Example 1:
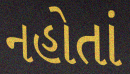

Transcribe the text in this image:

નહોતાં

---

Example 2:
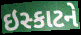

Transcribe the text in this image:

ઇસ્કાટને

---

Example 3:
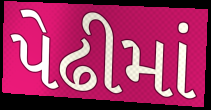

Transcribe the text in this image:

પેઢીમાં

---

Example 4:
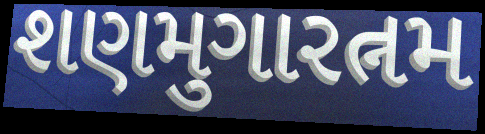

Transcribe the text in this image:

શણમુગારત્નમ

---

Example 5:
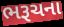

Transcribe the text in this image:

ભરૂચના